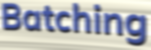
Batching